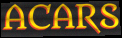
ACARS